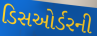
ડિસઓર્ડરની